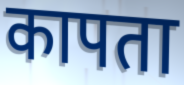
कापता